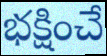
భక్షించే